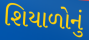
શિયાળોનું